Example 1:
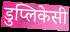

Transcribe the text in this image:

डुप्लिकेसी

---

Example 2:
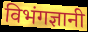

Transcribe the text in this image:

विभंगज्ञानी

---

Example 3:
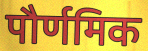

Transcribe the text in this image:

पौर्णमिक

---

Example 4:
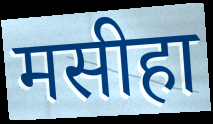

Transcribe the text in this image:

मसीहा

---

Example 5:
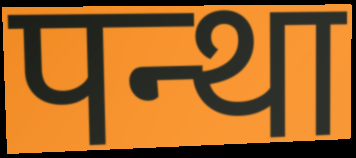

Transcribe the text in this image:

पन्‍था